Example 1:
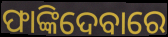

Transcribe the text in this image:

ଫାଙ୍କିଦେବାରେ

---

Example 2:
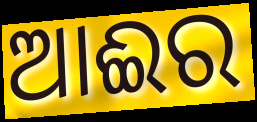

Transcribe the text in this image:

ଆଈର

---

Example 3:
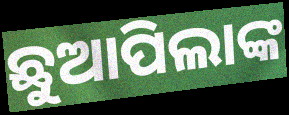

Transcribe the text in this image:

ଛୁଆପିଲାଙ୍କ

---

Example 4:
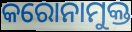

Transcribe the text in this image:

କରୋନାମୁକ୍ତ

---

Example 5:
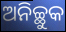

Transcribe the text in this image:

ଅନିଚ୍ଛୁକ